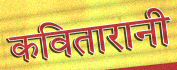
कवितारानी